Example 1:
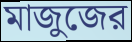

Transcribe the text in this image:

মাজুজের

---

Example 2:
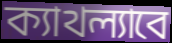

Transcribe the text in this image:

ক্যাথল্যাবে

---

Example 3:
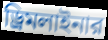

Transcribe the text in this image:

ড্রিমলাইনার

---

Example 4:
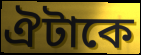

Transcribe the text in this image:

ঐটাকে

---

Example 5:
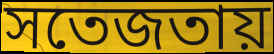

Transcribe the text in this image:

সতেজতায়